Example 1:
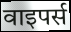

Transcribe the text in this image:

वाइपर्स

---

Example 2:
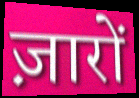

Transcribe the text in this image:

ज़ारों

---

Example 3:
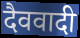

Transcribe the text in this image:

दैववादी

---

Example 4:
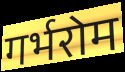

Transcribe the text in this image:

गर्भरोम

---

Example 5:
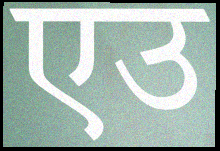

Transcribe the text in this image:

एउ